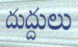
దుద్దులు